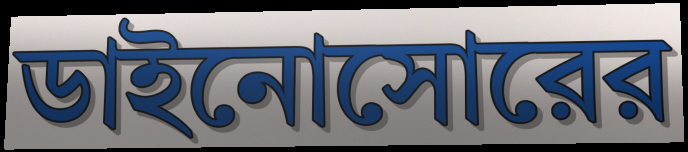
ডাইনোসোরের